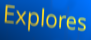
Explores